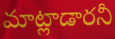
మాట్లాడారనీ